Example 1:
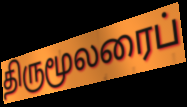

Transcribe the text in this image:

திருமூலரைப்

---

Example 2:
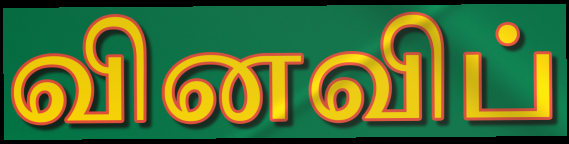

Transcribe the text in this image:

வினவிப்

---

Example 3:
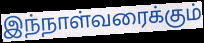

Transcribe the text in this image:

இந்நாள்வரைக்கும்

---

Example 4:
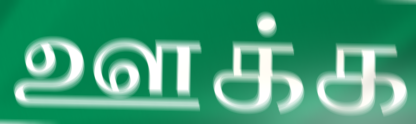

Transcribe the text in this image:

ஊக்க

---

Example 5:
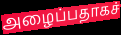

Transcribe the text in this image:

அழைப்பதாகச்